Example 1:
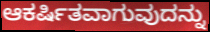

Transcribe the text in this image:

ಆಕರ್ಷಿತವಾಗುವುದನ್ನು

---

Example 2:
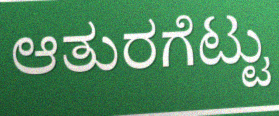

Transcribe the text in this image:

ಆತುರಗೆಟ್ಟು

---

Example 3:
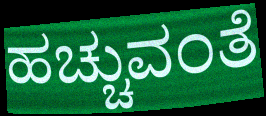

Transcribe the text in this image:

ಹಚ್ಚುವಂತೆ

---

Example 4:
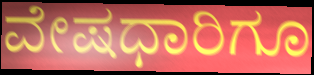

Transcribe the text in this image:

ವೇಷಧಾರಿಗೂ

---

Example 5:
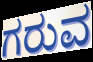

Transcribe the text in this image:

ಗರುವ